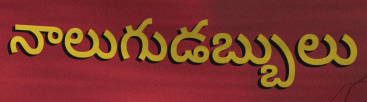
నాలుగుడబ్బులు